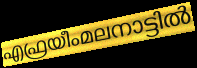
എഫ്രയീംമലനാട്ടിൽ